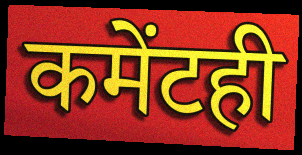
कमेंटही